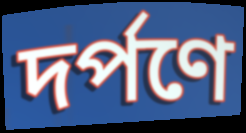
দর্পণে